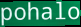
pohalo